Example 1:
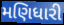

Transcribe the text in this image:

મણિધારી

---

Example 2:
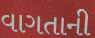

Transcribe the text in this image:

વાગતાની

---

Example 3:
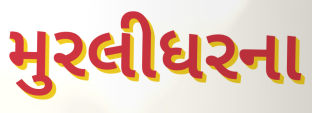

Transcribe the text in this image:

મુરલીધરના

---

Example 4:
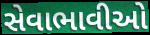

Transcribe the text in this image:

સેવાભાવીઓ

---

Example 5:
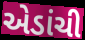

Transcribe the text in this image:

એડાંચી